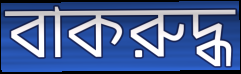
বাকরুদ্ধ